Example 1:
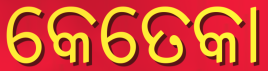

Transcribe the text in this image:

କେତେକା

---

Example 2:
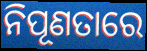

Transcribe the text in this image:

ନିପୂଣତାରେ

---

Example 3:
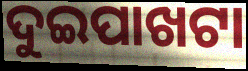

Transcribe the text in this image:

ଦୁଇପାଖଟା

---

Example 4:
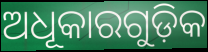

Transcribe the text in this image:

ଅଧୂକାରଗୁଡ଼ିକ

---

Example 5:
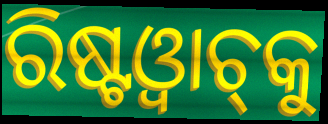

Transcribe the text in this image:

ରିଷ୍ଟଓ୍ୱାଚ୍‍କୁ